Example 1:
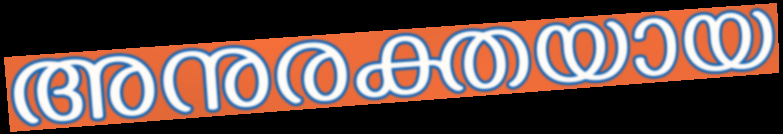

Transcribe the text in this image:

അനുരക്തയായ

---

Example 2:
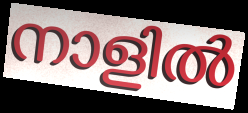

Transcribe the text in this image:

നാളിൽ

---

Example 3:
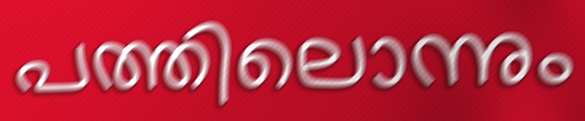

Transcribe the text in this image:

പത്തിലൊന്നും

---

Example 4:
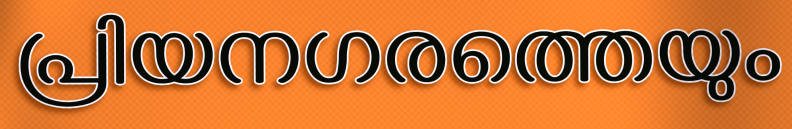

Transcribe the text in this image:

പ്രിയനഗരത്തെയും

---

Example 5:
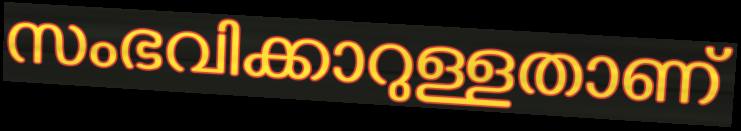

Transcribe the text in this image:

സംഭവിക്കാറുള്ളതാണ്